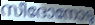
സീദോനോടു